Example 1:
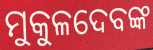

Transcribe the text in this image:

ମୁକୁଳଦେବଙ୍କ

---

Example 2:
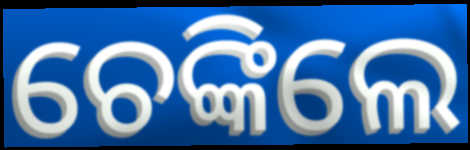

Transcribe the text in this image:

ଚେଙ୍କିଲେ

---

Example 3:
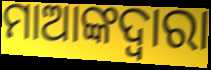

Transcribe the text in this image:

ମାଆଙ୍କଦ୍ଵାରା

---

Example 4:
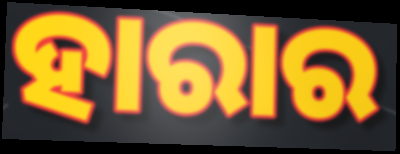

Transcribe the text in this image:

ହାରାର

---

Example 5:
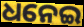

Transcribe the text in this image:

ଧନେଇ